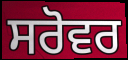
ਸਰੋਵਰ